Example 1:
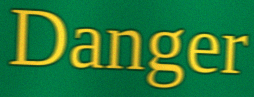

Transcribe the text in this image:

Danger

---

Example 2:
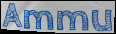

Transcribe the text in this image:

Ammu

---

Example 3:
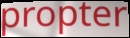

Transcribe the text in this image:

propter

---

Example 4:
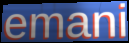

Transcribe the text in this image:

emani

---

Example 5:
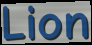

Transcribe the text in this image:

Lion